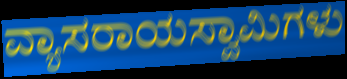
ವ್ಯಾಸರಾಯಸ್ವಾಮಿಗಳು